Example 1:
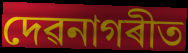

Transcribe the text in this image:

দেৱনাগৰীত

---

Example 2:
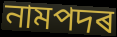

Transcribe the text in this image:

নামপদৰ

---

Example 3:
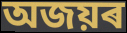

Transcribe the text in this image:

অজয়ৰ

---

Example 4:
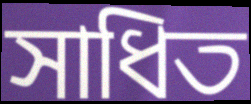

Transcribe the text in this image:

সাধিত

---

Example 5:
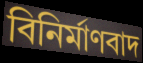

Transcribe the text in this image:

বিনিৰ্মাণবাদ